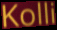
Kolli